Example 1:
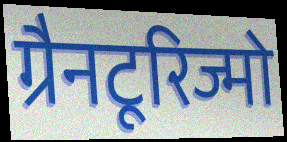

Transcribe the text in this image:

ग्रैनटूरिज्मो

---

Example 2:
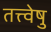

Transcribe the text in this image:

तत्त्वेषु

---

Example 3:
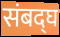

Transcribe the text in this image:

संबद्घ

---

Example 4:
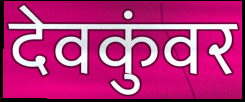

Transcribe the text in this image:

देवकुंवर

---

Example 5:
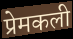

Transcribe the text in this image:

प्रेमकली